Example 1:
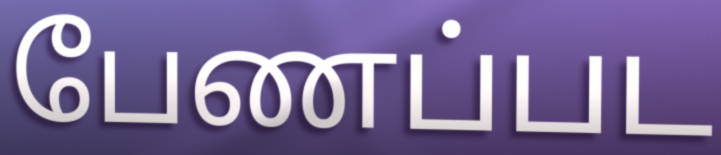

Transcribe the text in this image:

பேணப்பட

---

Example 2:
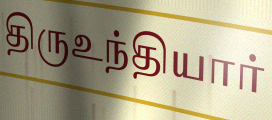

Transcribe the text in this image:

திருஉந்தியார்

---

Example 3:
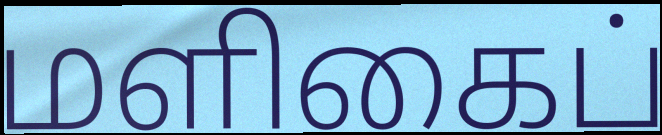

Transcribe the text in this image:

மளிகைப்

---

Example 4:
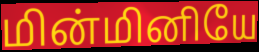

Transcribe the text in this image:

மின்மினியே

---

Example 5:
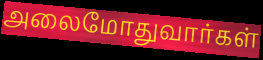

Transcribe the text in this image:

அலைமோதுவார்கள்